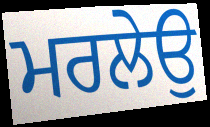
ਮਰਲੇਉ